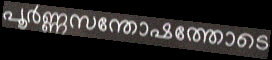
പൂർണ്ണസന്തോഷത്തോടെ